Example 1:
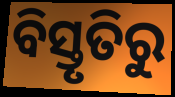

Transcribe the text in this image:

ବିସ୍ତୃତିରୁ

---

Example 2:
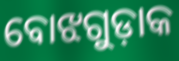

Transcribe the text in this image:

ବୋଝଗୁଡ଼ାକ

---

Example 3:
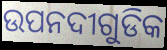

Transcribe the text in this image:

ଉପନଦୀଗୁଡିକ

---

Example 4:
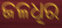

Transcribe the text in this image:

ଜଳଧିର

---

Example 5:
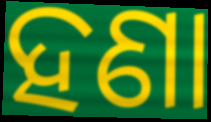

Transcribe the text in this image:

ହଣା